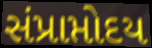
સંપ્રાપ્તોદય